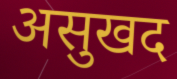
असुखद